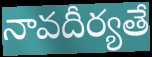
నావదీర్యతే